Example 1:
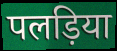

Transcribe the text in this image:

पलड़िया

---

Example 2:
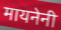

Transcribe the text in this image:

मायनेनी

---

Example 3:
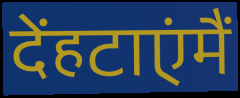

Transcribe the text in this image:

देंहटाएंमैं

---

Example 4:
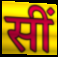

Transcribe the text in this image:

सीं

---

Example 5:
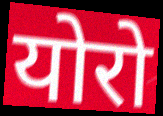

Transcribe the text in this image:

योरो